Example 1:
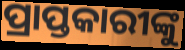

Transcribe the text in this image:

ପ୍ରାପ୍ତକାରୀଙ୍କୁ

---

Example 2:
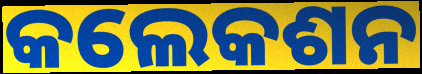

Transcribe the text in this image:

କଲେକଶନ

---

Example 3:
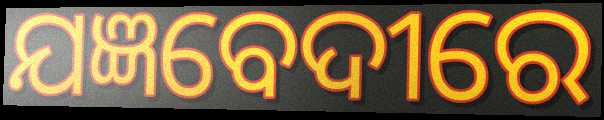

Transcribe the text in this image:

ଯଜ୍ଞବେଦୀରେ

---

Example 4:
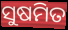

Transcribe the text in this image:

ସୁଷମିତ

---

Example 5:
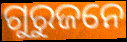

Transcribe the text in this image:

ଗୁରୁଜନେ